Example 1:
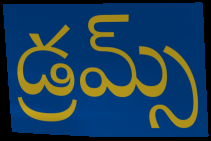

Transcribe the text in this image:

డ్రమ్స్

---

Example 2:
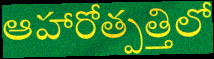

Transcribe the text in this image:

ఆహారోత్పత్తిలో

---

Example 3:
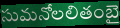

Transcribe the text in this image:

సుమనోలలితంబై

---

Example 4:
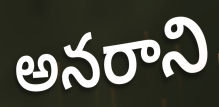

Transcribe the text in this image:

అనరాని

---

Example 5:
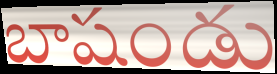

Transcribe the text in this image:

బాషండు